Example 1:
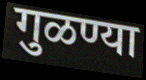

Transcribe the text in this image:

गुळण्या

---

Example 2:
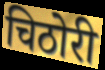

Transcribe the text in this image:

चिठोरी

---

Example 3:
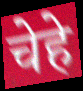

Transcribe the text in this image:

चेहे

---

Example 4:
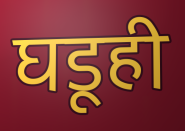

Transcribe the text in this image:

घडूही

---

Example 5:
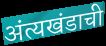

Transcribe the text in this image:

अंत्यखंडाची